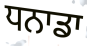
ਧਨਾਡਾ